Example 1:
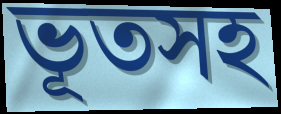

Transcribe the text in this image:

ভূতসহ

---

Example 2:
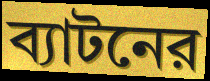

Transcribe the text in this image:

ব্যাটনের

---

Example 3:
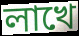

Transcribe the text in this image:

লাখে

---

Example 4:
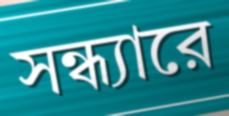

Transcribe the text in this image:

সন্ধ্যারে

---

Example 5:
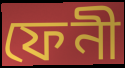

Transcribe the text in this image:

ফেনী